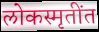
लोकस्मृतींत